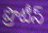
ప్రొటీస్